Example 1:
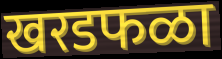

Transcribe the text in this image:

खरडफळा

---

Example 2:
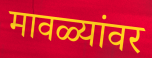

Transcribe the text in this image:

मावळ्यांवर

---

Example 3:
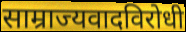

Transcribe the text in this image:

साम्राज्यवादविरोधी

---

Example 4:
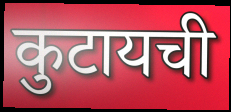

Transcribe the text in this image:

कुटायची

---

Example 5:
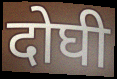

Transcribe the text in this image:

दोघी